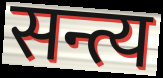
सन्त्य